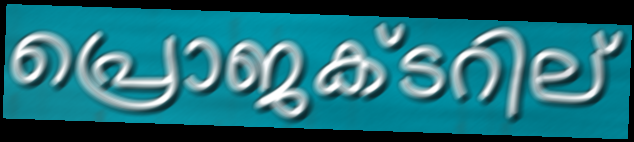
പ്രൊജക്ടറില്